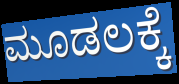
ಮೂಡಲಕ್ಕೆ